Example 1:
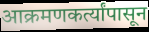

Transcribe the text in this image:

आक्रमणकर्त्यांपासून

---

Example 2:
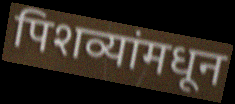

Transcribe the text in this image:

पिशव्यांमधून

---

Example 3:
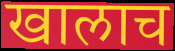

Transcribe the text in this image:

खालाच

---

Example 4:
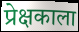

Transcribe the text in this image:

प्रेक्षकाला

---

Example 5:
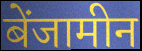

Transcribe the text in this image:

बेंजामीन